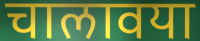
चालावया